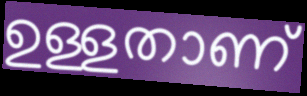
ഉള്ളതാണ്